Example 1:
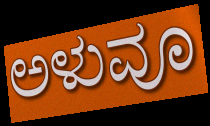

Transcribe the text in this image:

ಅಳುವೂ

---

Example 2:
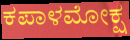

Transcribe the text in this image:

ಕಪಾಳಮೋಕ್ಷ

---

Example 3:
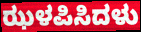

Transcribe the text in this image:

ಝಳಪಿಸಿದಳು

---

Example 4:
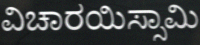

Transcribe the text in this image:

ವಿಚಾರಯಿಸ್ಸಾಮಿ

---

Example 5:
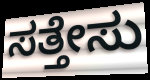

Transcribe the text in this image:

ಸತ್ತೇಸು